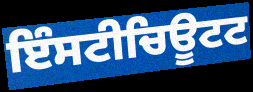
ਇੰਸਟੀਚਿਊਟਟ